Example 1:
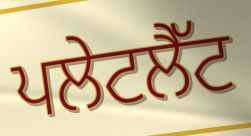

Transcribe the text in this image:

ਪਲੇਟਲੈੱਟ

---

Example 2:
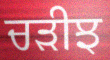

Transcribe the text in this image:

ਚੜੀਝ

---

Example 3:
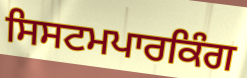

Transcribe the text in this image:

ਸਿਸਟਮਪਾਰਕਿੰਗ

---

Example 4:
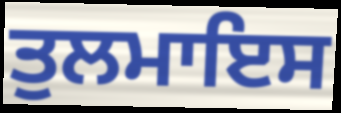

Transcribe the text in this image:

ਤੁਲਮਾਇਸ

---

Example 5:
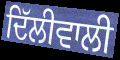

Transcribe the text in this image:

ਦਿੱਲੀਵਾਲੀ